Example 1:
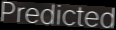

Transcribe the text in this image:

Predicted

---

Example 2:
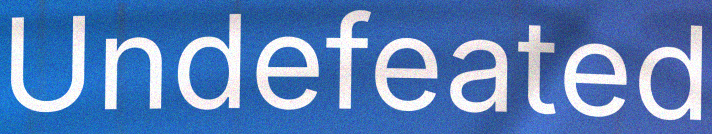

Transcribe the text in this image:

Undefeated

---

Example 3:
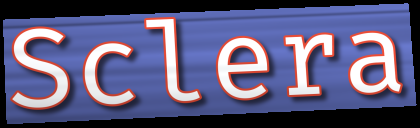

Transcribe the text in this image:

Sclera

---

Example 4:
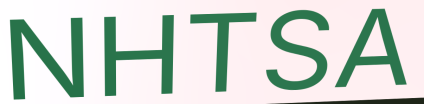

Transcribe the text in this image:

NHTSA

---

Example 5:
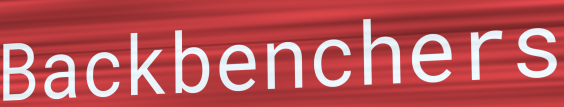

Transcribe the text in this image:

Backbenchers